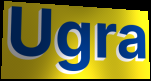
Ugra